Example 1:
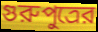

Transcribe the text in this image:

গুরুপুত্রের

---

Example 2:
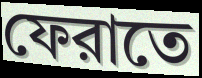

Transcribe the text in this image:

ফেরাতে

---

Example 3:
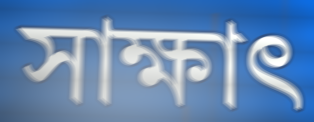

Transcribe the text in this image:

সাক্ষাৎ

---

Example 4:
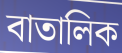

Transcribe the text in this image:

বাতালিক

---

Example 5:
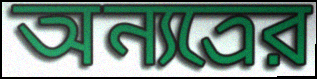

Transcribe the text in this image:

অন্যত্রের